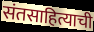
संतसाहित्याची